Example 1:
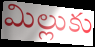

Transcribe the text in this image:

మిల్లుకు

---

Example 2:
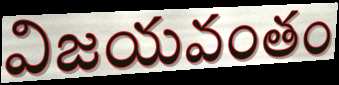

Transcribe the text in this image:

విజయవంతం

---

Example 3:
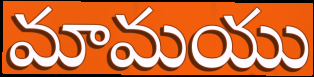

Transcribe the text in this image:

మామయు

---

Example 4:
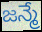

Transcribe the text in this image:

జన్మే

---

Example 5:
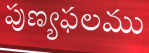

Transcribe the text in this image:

పుణ్యఫలము